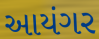
આયંગર